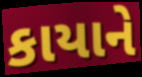
કાયાને